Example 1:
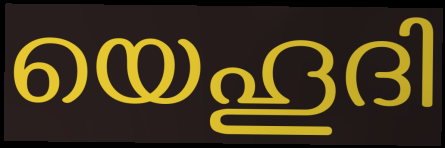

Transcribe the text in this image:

യെഹൂദി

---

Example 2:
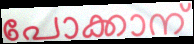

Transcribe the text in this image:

പോക്കാന്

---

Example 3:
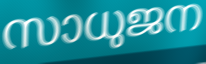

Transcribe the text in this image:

സാധുജന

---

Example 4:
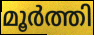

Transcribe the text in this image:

മൂർത്തി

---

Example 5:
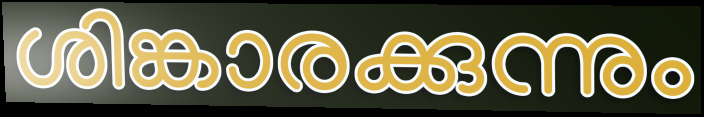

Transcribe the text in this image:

ശിങ്കാരക്കുന്നും